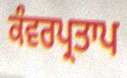
ਕੰਵਰਪ੍ਰਤਾਪ